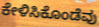
ಕೇಳಿಸಿಕೊಂಡೆವು